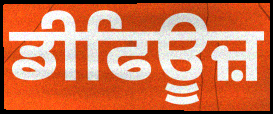
ਡੀਫਿਊਜ਼